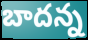
బాదన్న